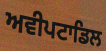
ਅਵੀਪਟਾਡਿਲ